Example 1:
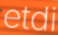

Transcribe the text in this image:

etdi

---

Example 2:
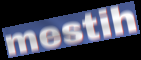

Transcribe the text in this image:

mestih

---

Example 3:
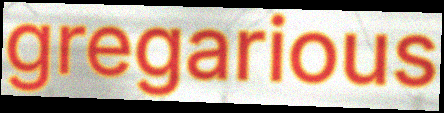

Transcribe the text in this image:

gregarious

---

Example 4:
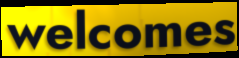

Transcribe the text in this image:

welcomes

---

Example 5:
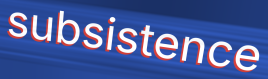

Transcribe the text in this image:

subsistence